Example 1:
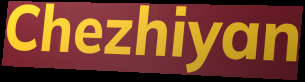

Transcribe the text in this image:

Chezhiyan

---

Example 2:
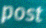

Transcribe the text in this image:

post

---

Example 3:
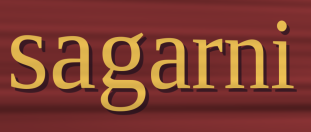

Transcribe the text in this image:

sagarni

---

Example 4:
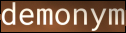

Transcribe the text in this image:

demonym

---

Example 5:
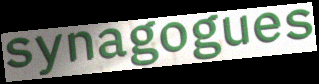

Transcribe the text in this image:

synagogues